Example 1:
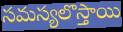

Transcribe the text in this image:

సమస్యలొస్తాయి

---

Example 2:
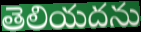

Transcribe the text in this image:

తెలియదను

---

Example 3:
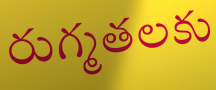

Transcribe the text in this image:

రుగ్మతలకు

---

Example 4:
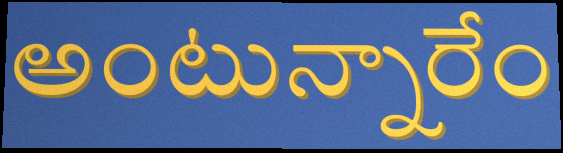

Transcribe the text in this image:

అంటున్నారేం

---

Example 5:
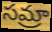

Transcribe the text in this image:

సమ్రా